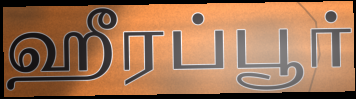
ஹீரப்பூர்